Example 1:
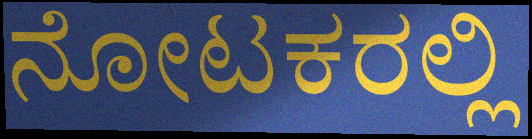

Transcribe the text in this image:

ನೋಟಕರಲ್ಲಿ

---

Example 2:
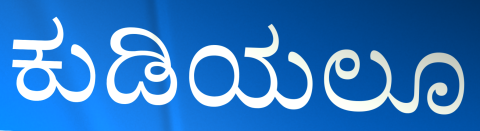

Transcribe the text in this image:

ಕುಡಿಯಲೂ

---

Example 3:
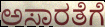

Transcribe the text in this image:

ಅಸಾರತೆಗೆ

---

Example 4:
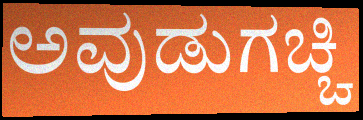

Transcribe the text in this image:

ಅವುಡುಗಚ್ಚಿ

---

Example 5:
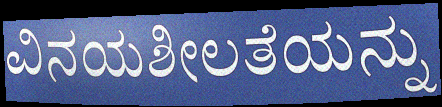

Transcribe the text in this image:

ವಿನಯಶೀಲತೆಯನ್ನು